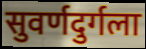
सुवर्णदुर्गला